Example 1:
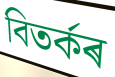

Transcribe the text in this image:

বিতৰ্কৰ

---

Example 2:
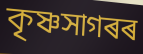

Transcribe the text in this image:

কৃষ্ণসাগৰৰ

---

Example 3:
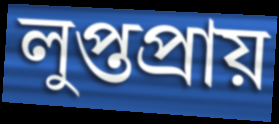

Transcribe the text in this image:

লুপ্তপ্ৰায়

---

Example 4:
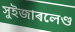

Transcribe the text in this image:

সুইজাৰলেণ্ড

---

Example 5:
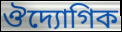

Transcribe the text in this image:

ঔদ্যোগিক